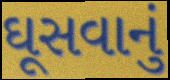
ઘૂસવાનું